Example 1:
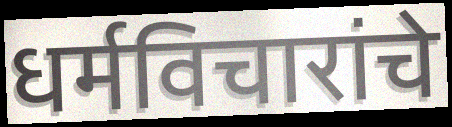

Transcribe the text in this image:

धर्मविचारांचे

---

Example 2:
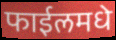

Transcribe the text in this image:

फाईलमधे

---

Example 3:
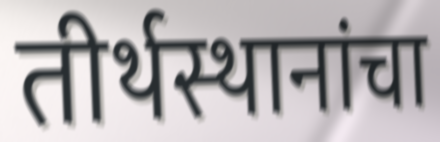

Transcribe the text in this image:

तीर्थस्थानांचा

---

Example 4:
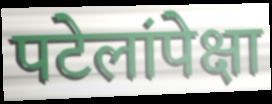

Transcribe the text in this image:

पटेलांपेक्षा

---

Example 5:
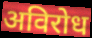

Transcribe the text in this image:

अविरोध